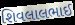
શિવલાલભાઈ